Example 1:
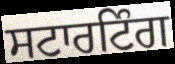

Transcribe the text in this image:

ਸਟਾਰਟਿੰਗ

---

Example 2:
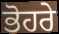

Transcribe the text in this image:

ਭੋਹਰੇ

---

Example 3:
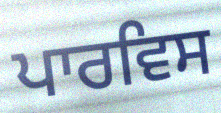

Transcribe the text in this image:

ਪਾਰਵਿਸ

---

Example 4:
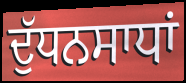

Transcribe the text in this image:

ਦੁੱਧਨਸਾਧਾਂ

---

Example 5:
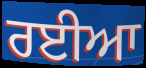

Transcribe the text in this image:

ਰਈਆ